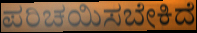
ಪರಿಚಯಿಸಬೇಕಿದೆ